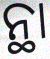
ନ୍ଥା